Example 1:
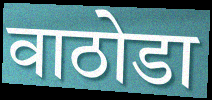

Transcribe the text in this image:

वाठोडा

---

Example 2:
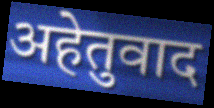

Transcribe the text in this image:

अहेतुवाद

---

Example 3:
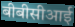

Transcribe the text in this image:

बीबीसीआई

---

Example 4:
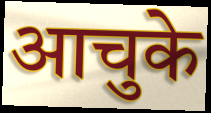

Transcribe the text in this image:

आचुके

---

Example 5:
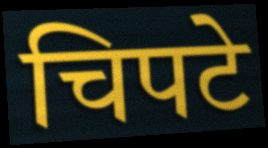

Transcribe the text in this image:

चिपटे